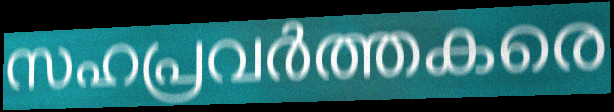
സഹപ്രവർത്തകരെ